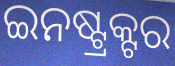
ଇନଷ୍ଟ୍ରକ୍ଟର